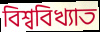
বিশ্ববিখ্যাত